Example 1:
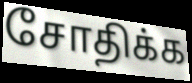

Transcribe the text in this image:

சோதிக்க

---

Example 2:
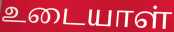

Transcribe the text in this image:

உடையாள்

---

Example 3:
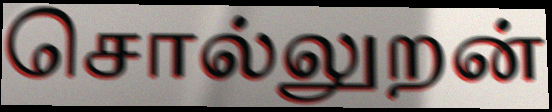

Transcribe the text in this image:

சொல்லுறன்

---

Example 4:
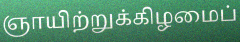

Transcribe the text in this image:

ஞாயிற்றுக்கிழமைப்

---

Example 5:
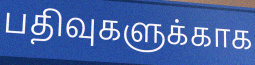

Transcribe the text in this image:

பதிவுகளுக்காக